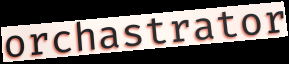
orchastrator